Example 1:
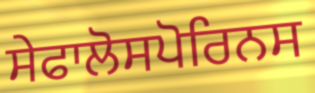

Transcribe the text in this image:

ਸੇਫਾਲੋਸਪੋਰਿਨਸ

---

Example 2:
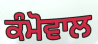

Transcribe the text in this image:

ਕੰਮੋਵਾਲ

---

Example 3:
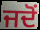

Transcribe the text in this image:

ਜਦੋਂ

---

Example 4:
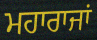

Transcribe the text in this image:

ਮਹਾਰਾਜਾਂ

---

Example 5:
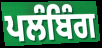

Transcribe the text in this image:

ਪਲੰਬਿੰਗ